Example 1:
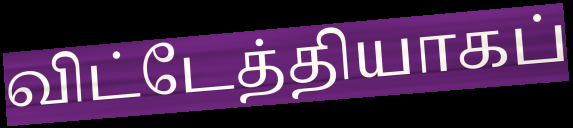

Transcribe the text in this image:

விட்டேத்தியாகப்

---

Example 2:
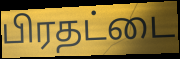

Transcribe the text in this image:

பிரதட்டை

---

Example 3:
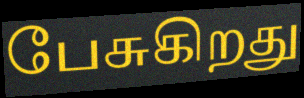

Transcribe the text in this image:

பேசுகிறது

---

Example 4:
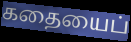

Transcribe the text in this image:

கதையைப்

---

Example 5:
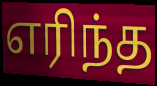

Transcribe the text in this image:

எரிந்த